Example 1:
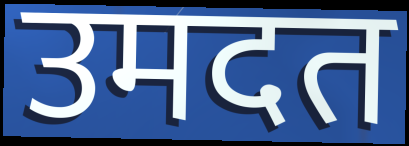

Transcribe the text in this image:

उमदत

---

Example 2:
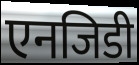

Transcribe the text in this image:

एनजिडी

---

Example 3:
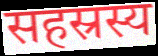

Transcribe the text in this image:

सहस्रस्य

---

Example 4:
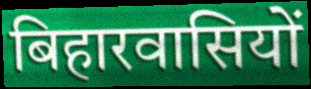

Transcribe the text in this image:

बिहारवासियों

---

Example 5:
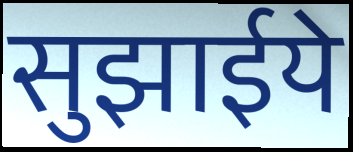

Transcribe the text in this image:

सुझाईये